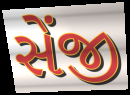
સેંજી